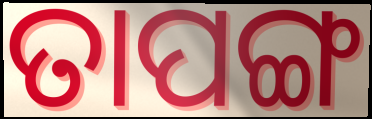
ତାପଙ୍ଗ